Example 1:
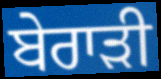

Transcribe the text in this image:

ਬੇਰਾੜੀ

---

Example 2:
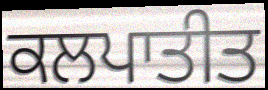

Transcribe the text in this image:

ਕਲਪਾਤੀਤ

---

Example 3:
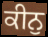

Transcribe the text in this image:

ਕੀਨੁ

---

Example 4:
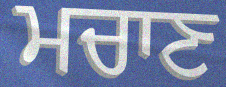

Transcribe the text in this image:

ਮਚਾਣ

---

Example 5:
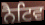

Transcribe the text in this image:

ਨੈਟਿਵ